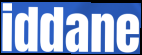
iddane